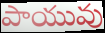
పాయువు